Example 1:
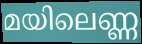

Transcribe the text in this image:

മയിലെണ്ണ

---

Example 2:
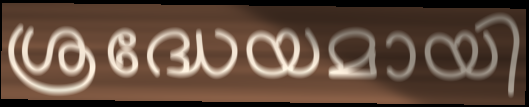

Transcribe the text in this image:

ശ്രദ്ധേയമായി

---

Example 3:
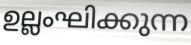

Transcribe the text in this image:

ഉല്ലംഘിക്കുന്ന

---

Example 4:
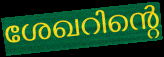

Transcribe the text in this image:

ശേഖറിന്റെ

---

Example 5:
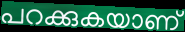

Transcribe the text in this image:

പറക്കുകയാണ്